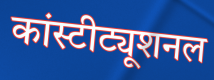
कांस्टीट्यूशनल